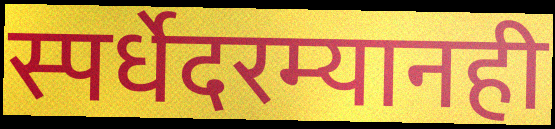
स्पर्धेदरम्यानही